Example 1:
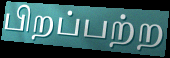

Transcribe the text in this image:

பிறப்பற்ற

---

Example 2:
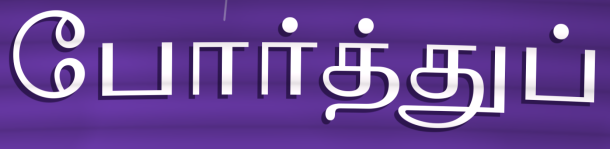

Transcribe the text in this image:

போர்த்துப்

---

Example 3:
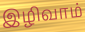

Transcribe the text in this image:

இழிவாம்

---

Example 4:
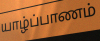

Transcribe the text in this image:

யாழ்ப்பாணம்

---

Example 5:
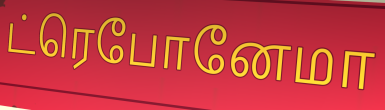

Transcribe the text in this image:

ட்ரெபோனேமா